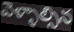
వెళ్ళాల్సిన